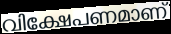
വിക്ഷേപണമാണ്